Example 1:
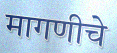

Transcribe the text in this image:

मागणीचे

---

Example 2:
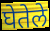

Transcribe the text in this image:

घेतेले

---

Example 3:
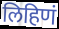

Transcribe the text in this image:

लिहिणं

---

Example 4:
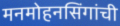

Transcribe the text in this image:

मनमोहनसिंगांची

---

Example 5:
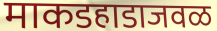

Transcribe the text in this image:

माकडहाडाजवळ